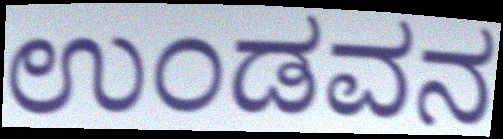
ಉಂಡವನ